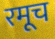
रमूच